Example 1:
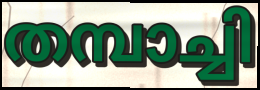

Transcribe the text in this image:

തമ്പാച്ചി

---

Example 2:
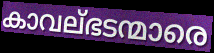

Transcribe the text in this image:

കാവല്ഭടന്മാരെ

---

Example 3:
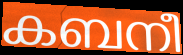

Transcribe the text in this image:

കബനീ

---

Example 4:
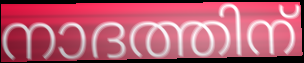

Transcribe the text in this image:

നാദത്തിന്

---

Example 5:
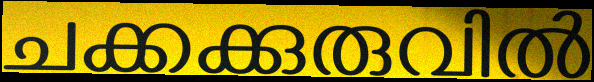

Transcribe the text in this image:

ചക്കക്കുരുവിൽ